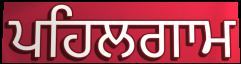
ਪਹਿਲਗਾਮ